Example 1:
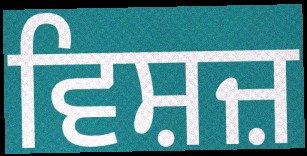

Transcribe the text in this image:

ਵਿਸ਼ਜ਼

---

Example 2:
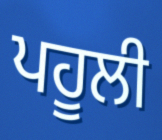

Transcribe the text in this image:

ਪਹੂਲੀ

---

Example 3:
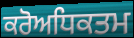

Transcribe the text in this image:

ਕਰੋਅਧਿਕਤਮ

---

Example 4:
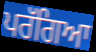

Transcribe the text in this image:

ਪਰੱਗਿਆ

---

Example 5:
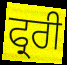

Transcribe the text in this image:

ਫ੍ਰਰੀ